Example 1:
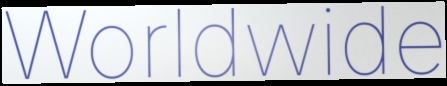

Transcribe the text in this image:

Worldwide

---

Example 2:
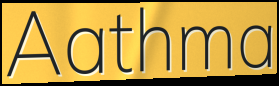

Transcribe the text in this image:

Aathma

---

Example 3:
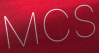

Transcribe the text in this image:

MCS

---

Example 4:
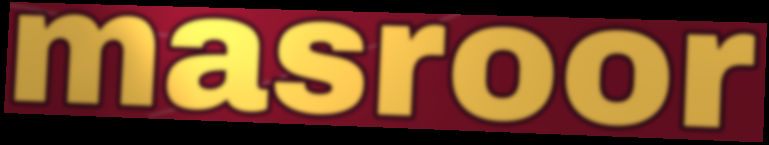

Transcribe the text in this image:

masroor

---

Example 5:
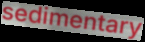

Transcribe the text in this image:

sedimentary